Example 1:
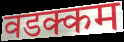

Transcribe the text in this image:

वडक्कम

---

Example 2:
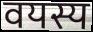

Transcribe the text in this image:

वयस्य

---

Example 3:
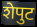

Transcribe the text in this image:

शेपुट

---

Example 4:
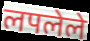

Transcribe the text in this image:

लपलेले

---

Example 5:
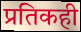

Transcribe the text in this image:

प्रतिकही